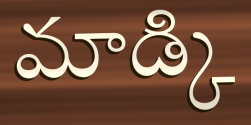
మాడ్కి